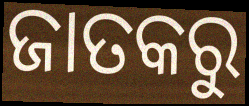
ଜାତକରୁ